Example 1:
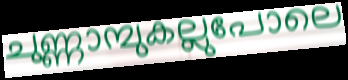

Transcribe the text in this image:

ചുണ്ണാമ്പുകല്ലുപോലെ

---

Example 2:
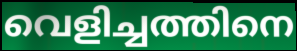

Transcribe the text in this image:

വെളിച്ചത്തിനെ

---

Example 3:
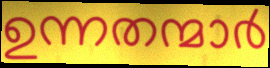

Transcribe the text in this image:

ഉന്നതന്മാർ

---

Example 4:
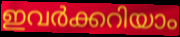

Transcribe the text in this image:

ഇവർക്കറിയാം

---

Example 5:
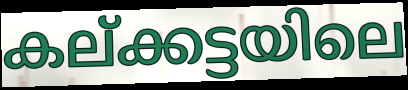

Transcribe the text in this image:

കല്ക്കട്ടയിലെ